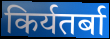
किर्यतर्बा